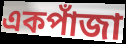
একপাঁজা